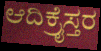
ಆದಿಕ್ರೈಸ್ತರ